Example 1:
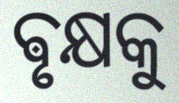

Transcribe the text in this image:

ଵୃକ୍ଷକୁ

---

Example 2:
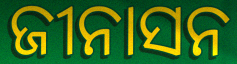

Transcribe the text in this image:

ଜୀନାସନ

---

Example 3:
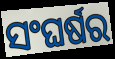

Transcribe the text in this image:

ସଂଘର୍ଷର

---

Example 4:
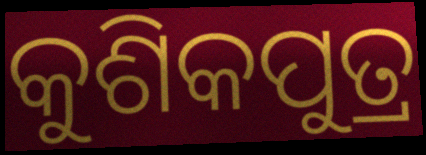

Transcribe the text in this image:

କୁଶିକପୁତ୍ର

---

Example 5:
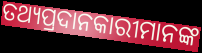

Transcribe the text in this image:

ତଥ୍ୟପ୍ରଦାନକାରୀମାନଙ୍କ